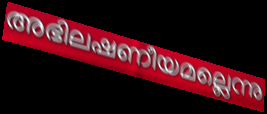
അഭിലഷണീയമല്ലെന്നു